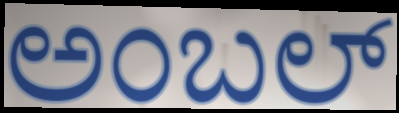
ಅಂಬಲ್